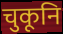
चुकूनि